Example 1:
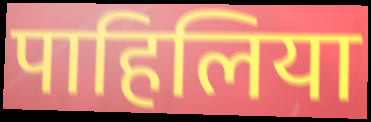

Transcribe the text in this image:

पाहिलिया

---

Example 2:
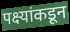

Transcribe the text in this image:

पक्ष्यांकडून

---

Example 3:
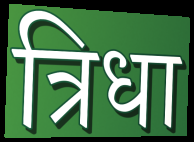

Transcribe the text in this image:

त्रिधा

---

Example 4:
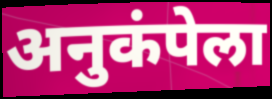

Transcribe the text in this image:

अनुकंपेला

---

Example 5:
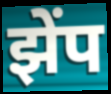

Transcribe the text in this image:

झेंप